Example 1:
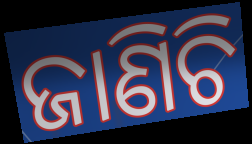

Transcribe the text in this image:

ଜାଣିଚି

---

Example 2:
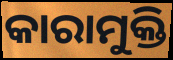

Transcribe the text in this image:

କାରାମୁକ୍ତି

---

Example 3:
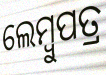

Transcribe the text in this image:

ଲେମ୍ବୁପତ୍ର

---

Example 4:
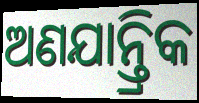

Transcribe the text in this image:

ଅଣଯାନ୍ତ୍ରିକ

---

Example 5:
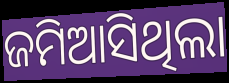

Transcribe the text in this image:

ଜମିଆସିଥିଲା